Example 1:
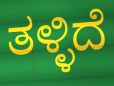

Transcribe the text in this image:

ತಳ್ಳಿದೆ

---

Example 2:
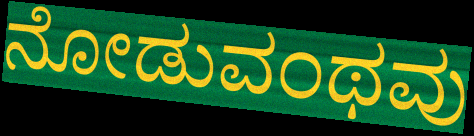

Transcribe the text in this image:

ನೋಡುವಂಥವು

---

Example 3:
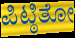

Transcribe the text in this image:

ಪಿಟ್ಠಿತೋ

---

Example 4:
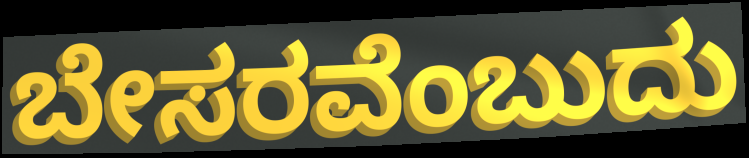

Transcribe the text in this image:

ಬೇಸರವೆಂಬುದು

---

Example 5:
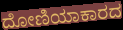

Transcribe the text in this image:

ದೋಣಿಯಾಕಾರದ